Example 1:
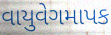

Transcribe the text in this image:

વાયુવેગમાપક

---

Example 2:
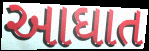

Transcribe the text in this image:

આઘાત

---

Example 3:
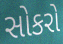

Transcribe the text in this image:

સોકરો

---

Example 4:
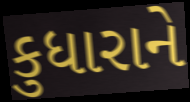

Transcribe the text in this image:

કુધારાને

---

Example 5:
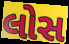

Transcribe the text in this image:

લોસ